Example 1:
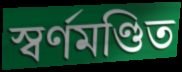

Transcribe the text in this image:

স্বর্ণমণ্ডিত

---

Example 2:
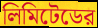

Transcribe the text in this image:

লিমিটেডের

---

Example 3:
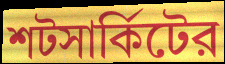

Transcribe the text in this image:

শটসার্কিটের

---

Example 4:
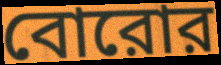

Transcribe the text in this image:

বোরোর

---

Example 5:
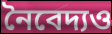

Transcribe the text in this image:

নৈবেদ্যও